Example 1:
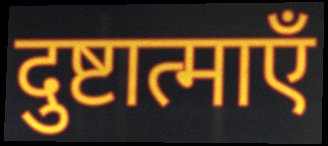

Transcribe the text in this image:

दुष्टात्माएँ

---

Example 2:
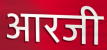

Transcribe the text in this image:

आरजी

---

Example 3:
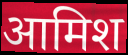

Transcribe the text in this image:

आमिश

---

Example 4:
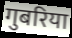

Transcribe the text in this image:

गुबरिया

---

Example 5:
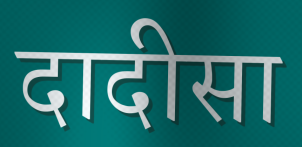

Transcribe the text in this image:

दादीसा